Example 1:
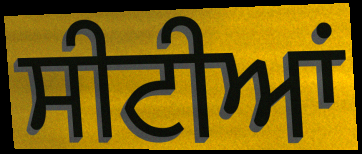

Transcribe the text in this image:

ਸੀਟੀਆਂ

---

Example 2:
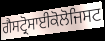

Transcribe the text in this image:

ਗੈਸਟ੍ਰੋਸਾਈਕੋਲੋਜਿਸਟ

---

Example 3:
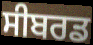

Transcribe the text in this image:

ਸੀਬਰਡ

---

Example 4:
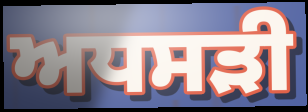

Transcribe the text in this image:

ਅਧਸੜੀ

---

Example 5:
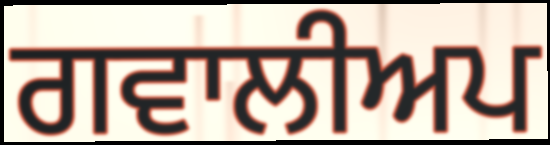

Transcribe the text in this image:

ਗਵਾਲੀਅਪ